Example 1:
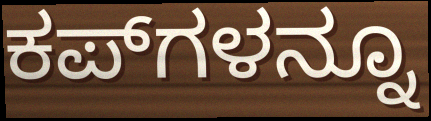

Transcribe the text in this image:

ಕಪ್‌ಗಳನ್ನೂ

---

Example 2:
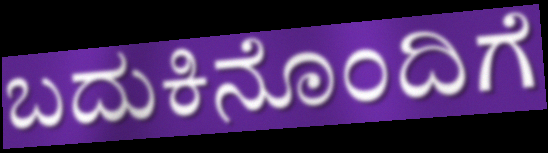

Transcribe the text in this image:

ಬದುಕಿನೊಂದಿಗೆ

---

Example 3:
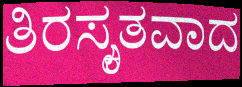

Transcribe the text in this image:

ತಿರಸ್ಕೃತವಾದ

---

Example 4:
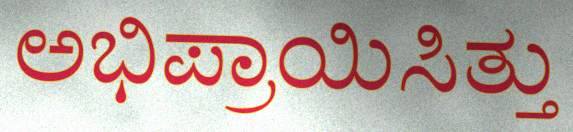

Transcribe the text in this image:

ಅಭಿಪ್ರಾಯಿಸಿತ್ತು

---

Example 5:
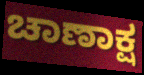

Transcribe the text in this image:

ಚಾಣಾಕ್ಷ